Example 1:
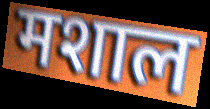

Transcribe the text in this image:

मशाल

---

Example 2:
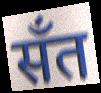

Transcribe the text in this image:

सँत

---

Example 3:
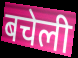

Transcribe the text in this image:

बचेली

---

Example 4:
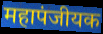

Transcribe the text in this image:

महापंजीयक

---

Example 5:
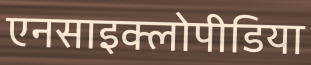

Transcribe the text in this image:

एनसाइक्लोपीडिया